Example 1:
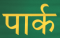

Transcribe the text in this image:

पार्क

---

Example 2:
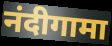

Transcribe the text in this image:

नंदीगामा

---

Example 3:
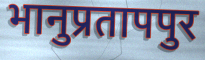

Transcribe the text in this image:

भानुप्रतापपुर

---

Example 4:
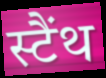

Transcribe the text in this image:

स्टैंथ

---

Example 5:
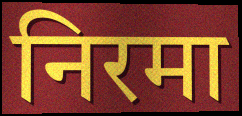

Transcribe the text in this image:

निरमा